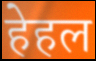
हेहल